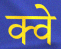
क्वे